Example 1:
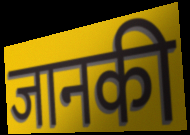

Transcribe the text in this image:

जानकी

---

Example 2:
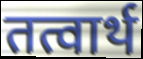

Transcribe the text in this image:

तत्वार्थ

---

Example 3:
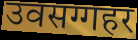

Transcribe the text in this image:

उवसग्गहर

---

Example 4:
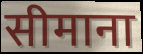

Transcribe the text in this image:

सीमाना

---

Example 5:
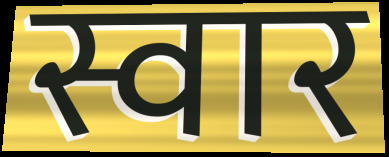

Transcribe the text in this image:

स्वार